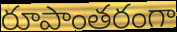
రూపాంతరంగా